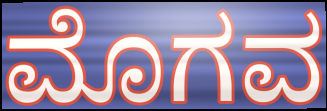
ಮೊಗವ